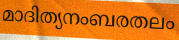
മാദിത്യനംബരതലം